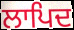
ਲਾਪਿਦ